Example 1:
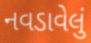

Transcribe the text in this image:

નવડાવેલું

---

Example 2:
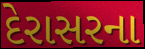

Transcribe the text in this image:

દેરાસરના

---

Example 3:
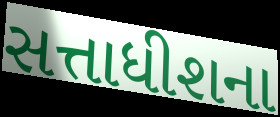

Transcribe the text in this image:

સત્તાધીશના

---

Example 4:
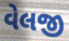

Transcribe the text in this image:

વેલજી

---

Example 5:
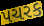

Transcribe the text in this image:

પચરક